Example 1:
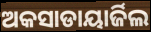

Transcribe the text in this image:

ଅକସାଡାୟାର୍ଜିଲ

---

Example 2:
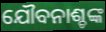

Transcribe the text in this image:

ଯୌବନାଶ୍ଚଙ୍କ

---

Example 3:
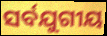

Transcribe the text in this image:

ସର୍ବଯୁଗୀୟ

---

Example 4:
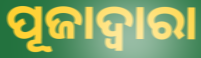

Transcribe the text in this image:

ପୂଜାଦ୍ୱାରା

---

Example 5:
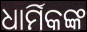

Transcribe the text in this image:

ଧାର୍ମିକଙ୍କ